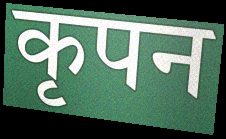
कृपन